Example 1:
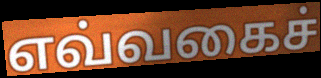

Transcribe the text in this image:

எவ்வகைச்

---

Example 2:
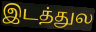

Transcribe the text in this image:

இடத்துல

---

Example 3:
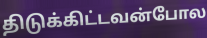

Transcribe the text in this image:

திடுக்கிட்டவன்போல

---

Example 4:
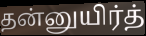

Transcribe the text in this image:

தன்னுயிர்த்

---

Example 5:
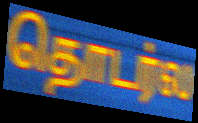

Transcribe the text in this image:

தொடர்ல